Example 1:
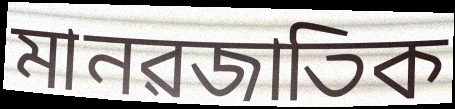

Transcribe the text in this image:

মানৱজাতিক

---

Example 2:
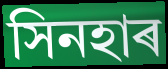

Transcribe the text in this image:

সিনহাৰ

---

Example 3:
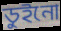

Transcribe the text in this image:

ডুইনো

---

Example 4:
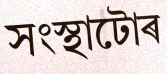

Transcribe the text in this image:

সংস্থাটোৰ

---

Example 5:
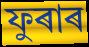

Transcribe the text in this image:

ফুৰাৰ